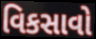
વિકસાવો